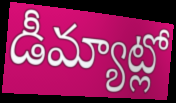
డీమ్యాట్లో